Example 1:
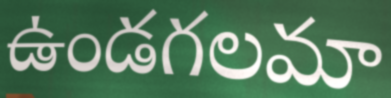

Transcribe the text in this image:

ఉండగలమా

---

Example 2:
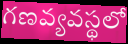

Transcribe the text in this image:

గణవ్యవస్థలో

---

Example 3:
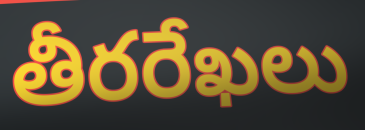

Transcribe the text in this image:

తీరరేఖలు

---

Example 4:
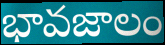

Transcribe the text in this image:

భావజాలం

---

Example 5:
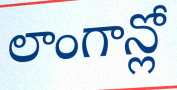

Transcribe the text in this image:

లాంగాన్లో